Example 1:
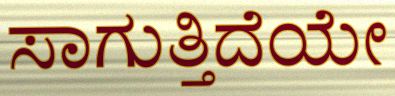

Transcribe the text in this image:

ಸಾಗುತ್ತಿದೆಯೇ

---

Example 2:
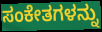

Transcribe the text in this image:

ಸಂಕೇತಗಳನ್ನು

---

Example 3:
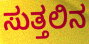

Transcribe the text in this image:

ಸುತ್ತಲಿನ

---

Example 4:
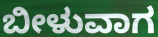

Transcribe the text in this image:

ಬೀಳುವಾಗ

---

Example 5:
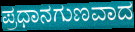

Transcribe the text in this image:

ಪ್ರಧಾನಗುಣವಾದ